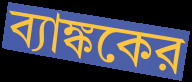
ব্যাঙ্ককের